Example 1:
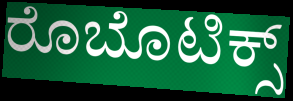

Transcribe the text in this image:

ರೊಬೊಟಿಕ್ಸ್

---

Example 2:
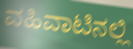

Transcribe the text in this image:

ವಹಿವಾಟಿನಲ್ಲಿ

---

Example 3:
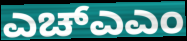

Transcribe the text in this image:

ಎಚ್ಎಎಂ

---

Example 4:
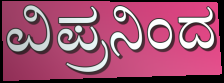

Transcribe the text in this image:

ವಿಪ್ರನಿಂದ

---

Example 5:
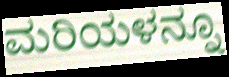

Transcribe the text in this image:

ಮರಿಯಳನ್ನೂ